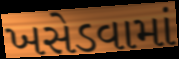
ખસેડવામાં